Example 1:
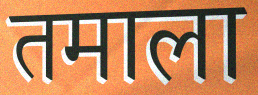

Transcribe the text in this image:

तमाला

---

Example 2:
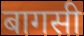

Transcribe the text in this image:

बागसी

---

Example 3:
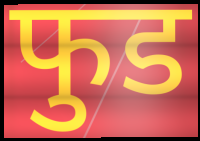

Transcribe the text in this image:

फुड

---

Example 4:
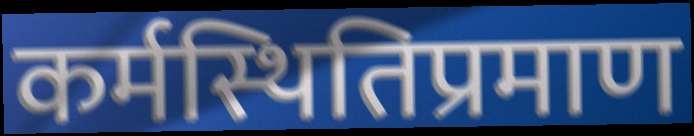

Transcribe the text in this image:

कर्मस्थितिप्रमाण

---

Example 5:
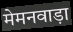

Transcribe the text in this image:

मेमनवाड़ा